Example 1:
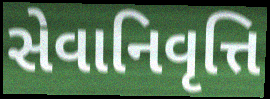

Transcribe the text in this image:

સેવાનિવૃત્તિ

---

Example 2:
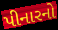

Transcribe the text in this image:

પીનારનો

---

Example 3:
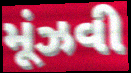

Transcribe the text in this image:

મૂંઝવી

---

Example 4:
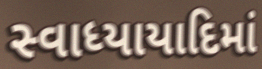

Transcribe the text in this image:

સ્વાધ્યાયાદિમાં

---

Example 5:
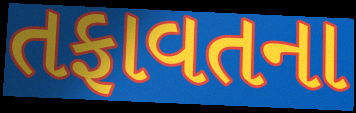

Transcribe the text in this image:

તફાવતના